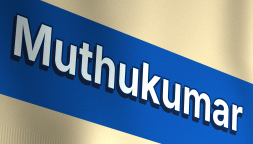
Muthukumar